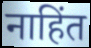
नाहिंत